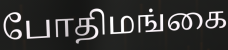
போதிமங்கை